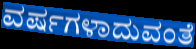
ವರ್ಷಗಳಾದುವಂತೆ